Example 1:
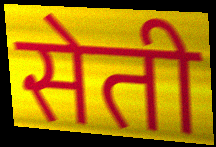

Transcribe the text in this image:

सेती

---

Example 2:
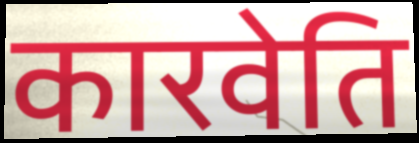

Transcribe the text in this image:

कारवेति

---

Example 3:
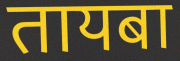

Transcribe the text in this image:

तायबा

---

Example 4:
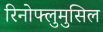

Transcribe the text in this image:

रिनोफ्लुमुसिल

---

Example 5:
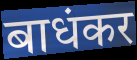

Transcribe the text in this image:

बाधंकर